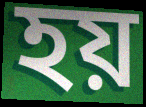
হয়